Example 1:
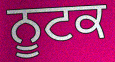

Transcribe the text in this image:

ਨੂਟਕ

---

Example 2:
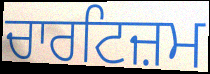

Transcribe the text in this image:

ਚਾਰਟਿਜ਼ਮ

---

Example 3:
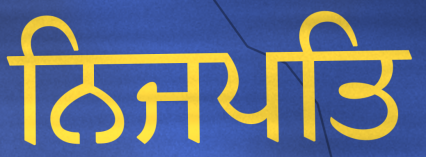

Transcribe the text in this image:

ਨਿਜਪਤਿ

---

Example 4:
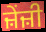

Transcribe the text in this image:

ਜ਼ੇਂਜ਼ੀ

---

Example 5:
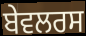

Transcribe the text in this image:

ਬੇਵਲਰਸ